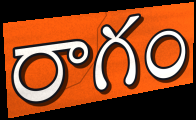
రాగం